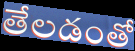
తేలడంతో